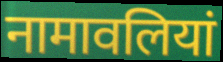
नामावलियां